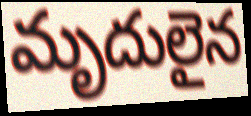
మృదులైన